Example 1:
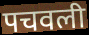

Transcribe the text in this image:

पचवली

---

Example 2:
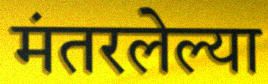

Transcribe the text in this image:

मंतरलेल्या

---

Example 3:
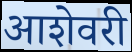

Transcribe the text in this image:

आशेवरी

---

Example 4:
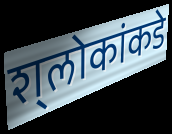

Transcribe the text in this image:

श्लोकांकडे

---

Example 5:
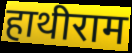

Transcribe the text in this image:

हाथीराम